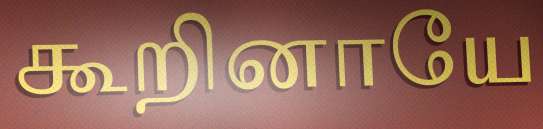
கூறினாயே